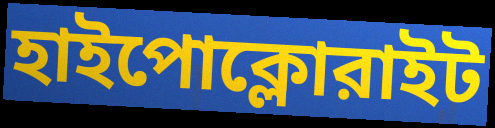
হাইপোক্লোরাইট